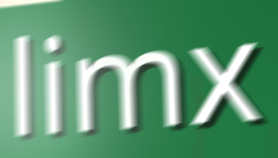
limx